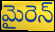
మైరెన్